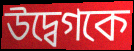
উদ্বেগকে